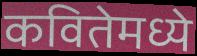
कवितेमध्ये